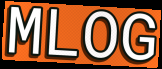
MLOG